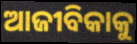
ଆଜୀବିକାକୁ